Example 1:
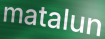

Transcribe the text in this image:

matalun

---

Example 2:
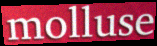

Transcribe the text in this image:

molluse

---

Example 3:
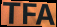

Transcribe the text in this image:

TFA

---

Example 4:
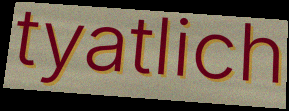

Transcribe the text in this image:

tyatlich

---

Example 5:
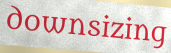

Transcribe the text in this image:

downsizing